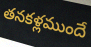
తనకళ్లముందే